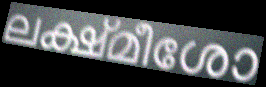
ലക്ഷ്മീശോ